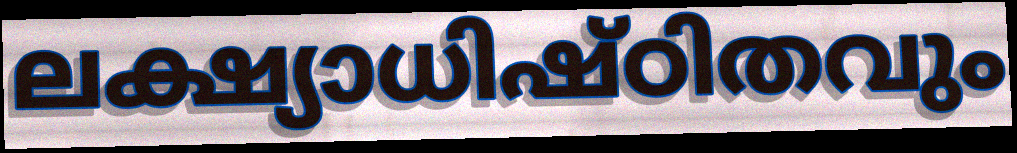
ലക്ഷ്യാധിഷ്ഠിതവും